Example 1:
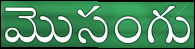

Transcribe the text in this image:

మొసంగు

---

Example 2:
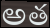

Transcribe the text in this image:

అత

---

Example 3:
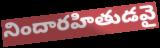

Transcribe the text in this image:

నిందారహితుడవై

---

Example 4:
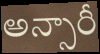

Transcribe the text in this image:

అన్సారీ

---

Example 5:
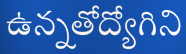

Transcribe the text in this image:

ఉన్నతోద్యోగిని